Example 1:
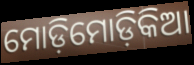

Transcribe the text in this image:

ମୋଡ଼ିମୋଡ଼ିକିଆ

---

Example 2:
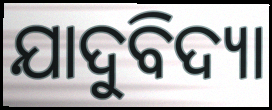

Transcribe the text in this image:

ଯାଦୁବିଦ୍ୟା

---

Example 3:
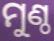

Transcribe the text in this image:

ମୁଣ୍ଠ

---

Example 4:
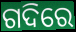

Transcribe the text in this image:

ଗଦିରେ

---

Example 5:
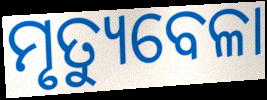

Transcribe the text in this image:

ମୃତ୍ୟୁବେଳା